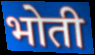
भोती